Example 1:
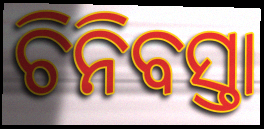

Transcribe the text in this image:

ଚିନିବସ୍ତା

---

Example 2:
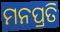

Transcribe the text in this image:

ମନପ୍ରତି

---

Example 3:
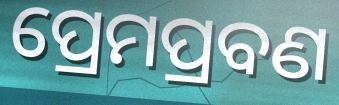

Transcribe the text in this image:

ପ୍ରେମପ୍ରବଣ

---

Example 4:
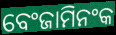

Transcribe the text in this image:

ବେଂଜାମିନଂକ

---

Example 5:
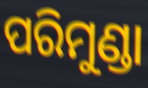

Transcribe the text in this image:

ପରିମୁଣ୍ଡା